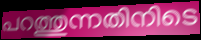
പറത്തുന്നതിനിടെ